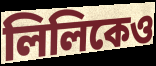
লিলিকেও